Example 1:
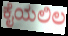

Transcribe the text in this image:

ಕೈಯಲಿಲ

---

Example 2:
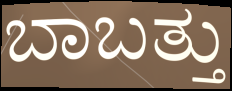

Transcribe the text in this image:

ಬಾಬತ್ತು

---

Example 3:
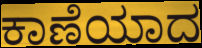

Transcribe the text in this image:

ಕಾಣೆಯಾದ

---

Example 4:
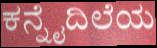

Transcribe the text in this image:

ಕನ್ನೈದಿಲೆಯ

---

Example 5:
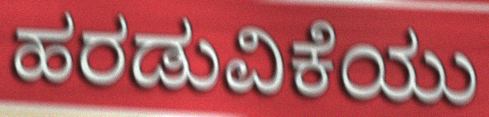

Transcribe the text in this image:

ಹರಡುವಿಕೆಯು